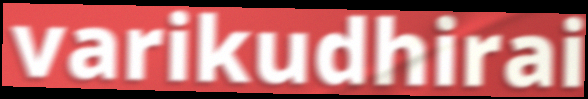
varikudhirai